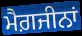
ਮੈਗ਼ਜੀਨਾਂ